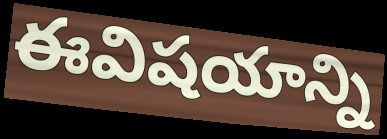
ఈవిషయాన్ని